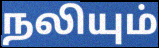
நலியும்